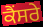
ਕੈਂਸਰੇ